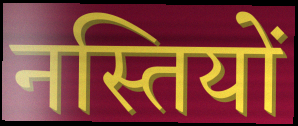
नस्तियों